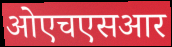
ओएचएसआर